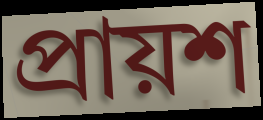
প্রায়শ